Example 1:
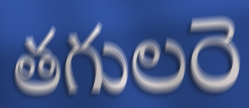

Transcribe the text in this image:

తగులరె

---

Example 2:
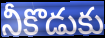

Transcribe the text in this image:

నీకొడుకు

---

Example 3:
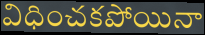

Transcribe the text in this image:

విధించకపోయినా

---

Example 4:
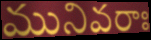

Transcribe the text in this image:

మునివరాః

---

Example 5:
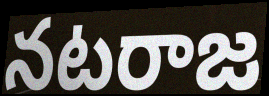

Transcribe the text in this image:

నటరాజ